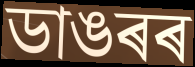
ডাঙৰৰ